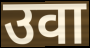
उवा